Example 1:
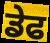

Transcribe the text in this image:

ਡੇਫ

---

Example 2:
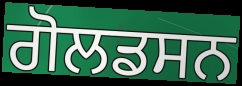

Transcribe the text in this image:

ਗੋਲਡਸਨ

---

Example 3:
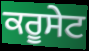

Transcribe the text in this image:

ਕਰੂਸੇਟ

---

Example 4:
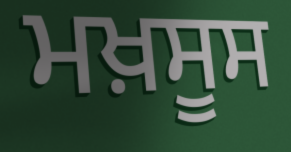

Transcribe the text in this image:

ਮਖ਼ਸੂਸ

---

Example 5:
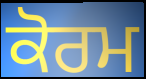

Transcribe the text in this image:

ਕੋਰਮ